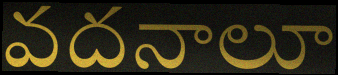
వదనాలూ